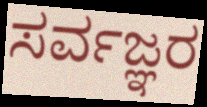
ಸರ್ವಜ್ಞರ